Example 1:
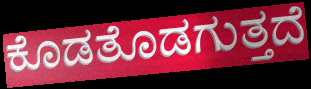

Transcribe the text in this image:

ಕೊಡತೊಡಗುತ್ತದೆ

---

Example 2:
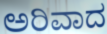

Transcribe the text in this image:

ಅರಿವಾದ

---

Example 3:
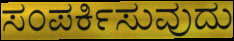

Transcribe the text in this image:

ಸಂಪರ್ಕಿಸುವುದು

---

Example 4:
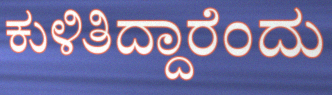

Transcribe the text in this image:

ಕುಳಿತಿದ್ದಾರೆಂದು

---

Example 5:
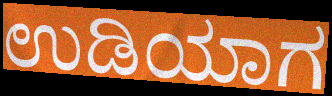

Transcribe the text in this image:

ಉಡಿಯಾಗ